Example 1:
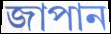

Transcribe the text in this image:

জাপান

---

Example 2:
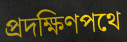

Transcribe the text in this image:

প্রদক্ষিণপথে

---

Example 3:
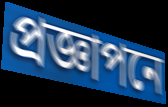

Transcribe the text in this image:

প্রজ্ঞাপনে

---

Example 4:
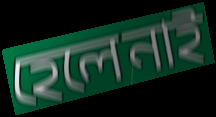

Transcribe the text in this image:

হেলেনাই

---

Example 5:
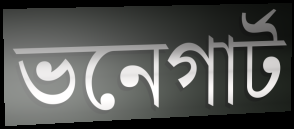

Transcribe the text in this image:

ভনেগার্ট